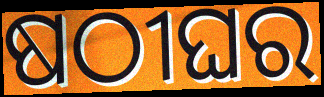
ଷଠୀଘର